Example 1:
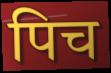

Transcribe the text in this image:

पिच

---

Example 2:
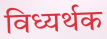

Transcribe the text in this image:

विध्यर्थक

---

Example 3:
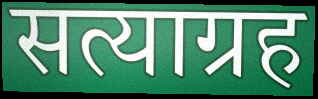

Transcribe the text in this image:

सत्याग्रह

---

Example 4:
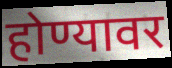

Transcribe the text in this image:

होण्यावर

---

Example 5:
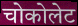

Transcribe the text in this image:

चोकोलेट